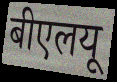
बीएलयू